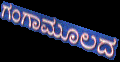
ಗಂಗಾಮೂಲದ